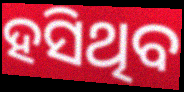
ହସିଥିବ